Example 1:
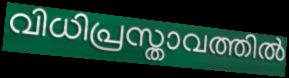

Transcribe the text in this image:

വിധിപ്രസ്താവത്തിൽ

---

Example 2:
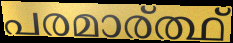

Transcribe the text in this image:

പരമാര്ത്ഥ്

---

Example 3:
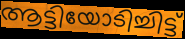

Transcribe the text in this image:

ആട്ടിയോടിച്ചിട്ട്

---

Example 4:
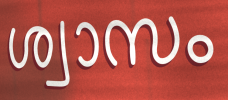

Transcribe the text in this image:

ശ്വാസം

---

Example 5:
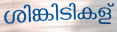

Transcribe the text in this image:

ശിങ്കിടികള്